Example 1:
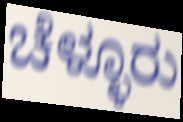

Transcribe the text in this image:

ಚೆಳ್ಳೂರು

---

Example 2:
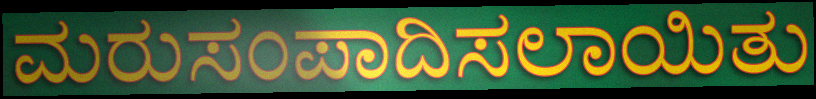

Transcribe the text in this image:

ಮರುಸಂಪಾದಿಸಲಾಯಿತು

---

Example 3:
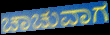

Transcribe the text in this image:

ಚಾಚುವಾಗ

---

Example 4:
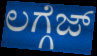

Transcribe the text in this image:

ಲಗ್ಗೆಜ್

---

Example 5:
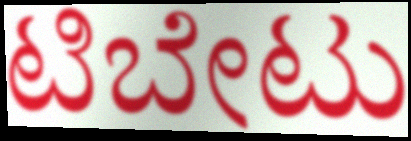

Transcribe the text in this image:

ಟಿಬೇಟು